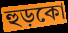
হুড়কো